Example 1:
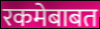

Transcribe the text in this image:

रकमेबाबत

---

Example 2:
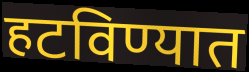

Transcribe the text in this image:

हटविण्यात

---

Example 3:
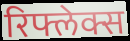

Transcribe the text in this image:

रिफ्लेक्स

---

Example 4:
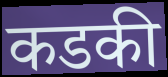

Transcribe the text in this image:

कडकी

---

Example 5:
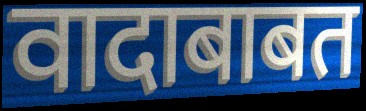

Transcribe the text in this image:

वादाबाबत